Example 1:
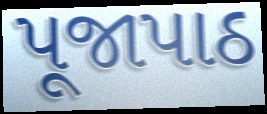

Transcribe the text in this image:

પૂજાપાઠ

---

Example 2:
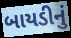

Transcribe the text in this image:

બાયડીનું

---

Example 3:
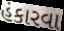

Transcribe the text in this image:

હંકારવા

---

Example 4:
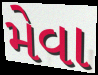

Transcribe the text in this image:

મેવા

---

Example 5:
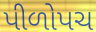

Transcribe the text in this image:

પીળોપચ